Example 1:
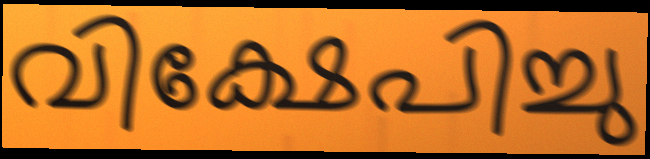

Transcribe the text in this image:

വിക്ഷേപിച്ചു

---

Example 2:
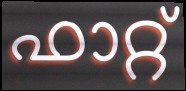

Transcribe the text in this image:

ഫാറ്റ്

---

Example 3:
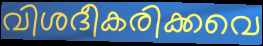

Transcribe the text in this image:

വിശദീകരിക്കവെ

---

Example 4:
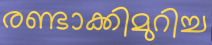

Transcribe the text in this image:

രണ്ടാക്കിമുറിച്ച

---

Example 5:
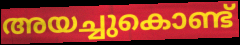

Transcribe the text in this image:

അയച്ചുകൊണ്ട്